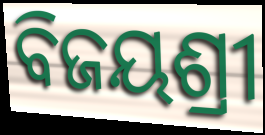
ବିଜୟଶ୍ରୀ